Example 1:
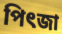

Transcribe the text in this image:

পিৎজা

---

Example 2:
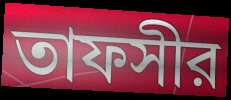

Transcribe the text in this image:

তাফসীর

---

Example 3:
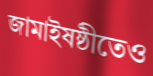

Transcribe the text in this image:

জামাইষষ্ঠীতেও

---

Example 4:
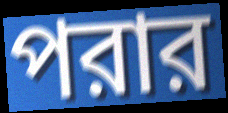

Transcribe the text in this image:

পরার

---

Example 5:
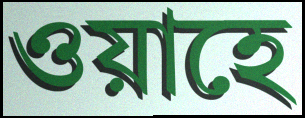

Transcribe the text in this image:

ওয়াহে